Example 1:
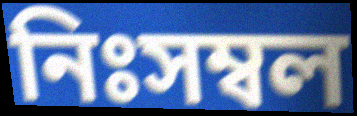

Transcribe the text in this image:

নিঃসম্বল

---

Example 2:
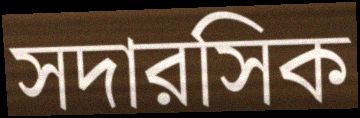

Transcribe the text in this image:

সদারসিক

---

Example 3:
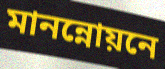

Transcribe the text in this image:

মানন্নোয়নে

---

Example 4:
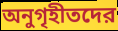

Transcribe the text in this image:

অনুগৃহীতদের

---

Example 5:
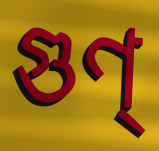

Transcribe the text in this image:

গুণ্